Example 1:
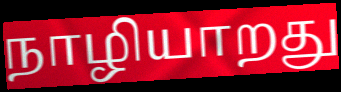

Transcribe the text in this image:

நாழியாறது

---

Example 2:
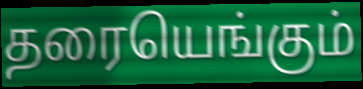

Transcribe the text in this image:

தரையெங்கும்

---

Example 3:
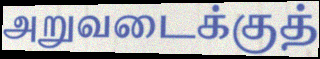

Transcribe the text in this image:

அறுவடைக்குத்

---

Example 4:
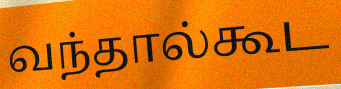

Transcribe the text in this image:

வந்தால்கூட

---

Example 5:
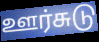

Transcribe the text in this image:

ஊர்சுடு